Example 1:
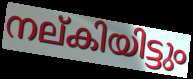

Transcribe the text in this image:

നല്കിയിട്ടും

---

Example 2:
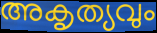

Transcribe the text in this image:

അകൃത്യവും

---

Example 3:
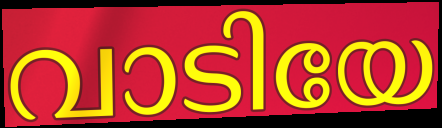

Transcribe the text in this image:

വാടിയേ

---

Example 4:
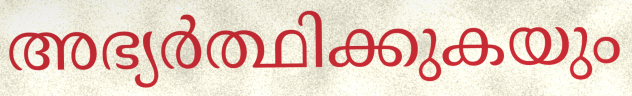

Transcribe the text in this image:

അഭ്യർത്ഥിക്കുകയും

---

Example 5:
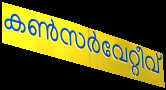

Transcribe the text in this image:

കൺസർവേറ്റീവ്